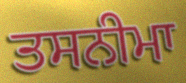
ਤਸਨੀਮਾ